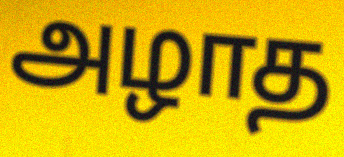
அழாத